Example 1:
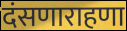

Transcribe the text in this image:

दंसणाराहणा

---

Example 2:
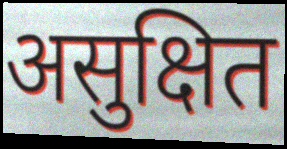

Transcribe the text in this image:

असुक्षित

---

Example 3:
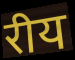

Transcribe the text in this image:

रीय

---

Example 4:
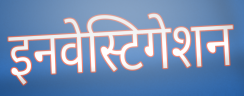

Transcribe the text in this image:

इनवेस्टिगेशन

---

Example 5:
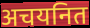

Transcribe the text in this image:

अचयनित